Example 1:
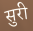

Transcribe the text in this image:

सुरी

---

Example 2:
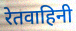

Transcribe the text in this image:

रेतवाहिनी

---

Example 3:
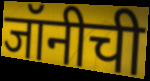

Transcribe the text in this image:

जॉनीची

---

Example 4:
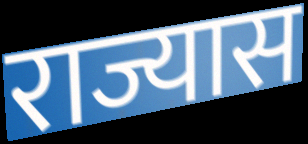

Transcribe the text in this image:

राज्यास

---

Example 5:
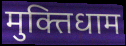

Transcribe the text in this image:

मुक्तिधाम